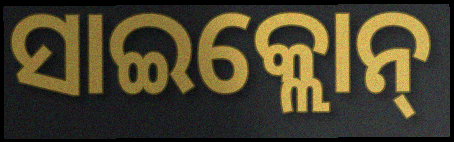
ସାଇକ୍ଲୋନ୍